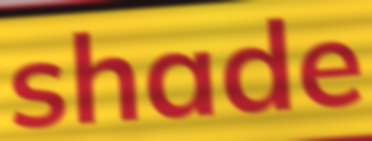
shade